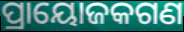
ପ୍ରାୟୋଜକଗଣ